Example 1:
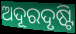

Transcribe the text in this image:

ଅଦୂରଦୃଷ୍ଟି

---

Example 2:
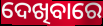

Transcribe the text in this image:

ଦେଖିବାରେ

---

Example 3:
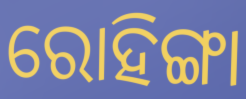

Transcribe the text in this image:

ରୋହିଙ୍ଗା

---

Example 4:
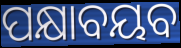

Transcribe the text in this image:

ପକ୍ଷାବୟବ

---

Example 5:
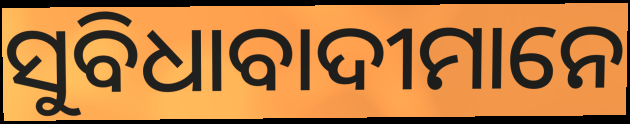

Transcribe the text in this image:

ସୁବିଧାବାଦୀମାନେ